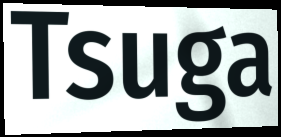
Tsuga